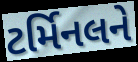
ટર્મિનલને